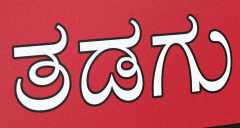
ತಡಗು